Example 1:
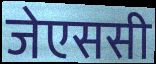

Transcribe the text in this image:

जेएससी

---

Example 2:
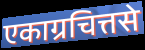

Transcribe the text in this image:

एकाग्रचित्तसे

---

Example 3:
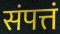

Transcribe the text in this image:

संपत्तं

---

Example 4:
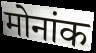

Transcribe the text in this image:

मोनांक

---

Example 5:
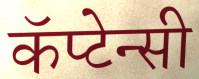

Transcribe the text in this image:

कॅप्टेन्सी